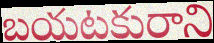
బయటకురాని